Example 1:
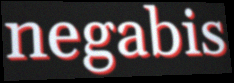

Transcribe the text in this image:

negabis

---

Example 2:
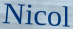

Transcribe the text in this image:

Nicol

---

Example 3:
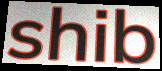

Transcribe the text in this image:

shib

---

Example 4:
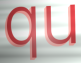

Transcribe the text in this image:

qu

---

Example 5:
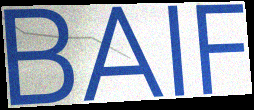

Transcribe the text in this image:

BAIF